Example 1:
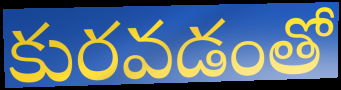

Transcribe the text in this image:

కురవడంతో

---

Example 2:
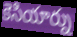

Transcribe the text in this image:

కెసియార్ను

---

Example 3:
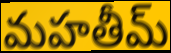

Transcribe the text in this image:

మహతీమ్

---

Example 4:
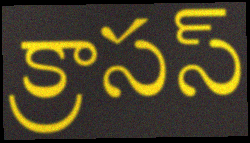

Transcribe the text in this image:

క్రాసస్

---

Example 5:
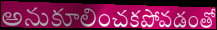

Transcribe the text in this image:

అనుకూలించకపోవడంతో